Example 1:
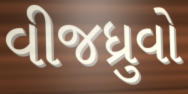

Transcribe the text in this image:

વીજધ્રુવો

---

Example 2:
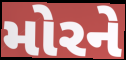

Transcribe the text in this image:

મોરને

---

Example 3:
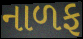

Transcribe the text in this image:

નાળફ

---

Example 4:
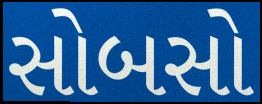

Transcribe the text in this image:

સોબસો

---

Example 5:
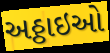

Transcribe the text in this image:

અઠ્ઠાઇઓ